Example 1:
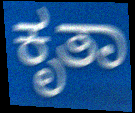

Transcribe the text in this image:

ಕೃತಾ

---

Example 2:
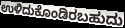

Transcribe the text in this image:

ಉಳಿದುಕೊಂಡಿರಬಹುದು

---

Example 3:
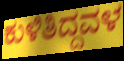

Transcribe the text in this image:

ಕುಳಿತಿದ್ದವಳ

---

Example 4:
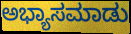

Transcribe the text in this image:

ಅಭ್ಯಾಸಮಾಡು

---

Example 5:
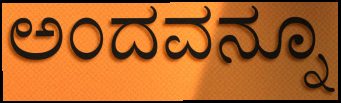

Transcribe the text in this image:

ಅಂದವನ್ನೂ